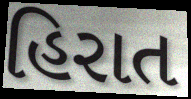
હિરાત